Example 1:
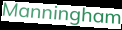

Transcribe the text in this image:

Manningham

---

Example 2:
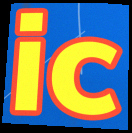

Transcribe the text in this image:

ic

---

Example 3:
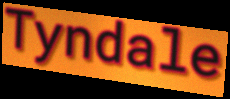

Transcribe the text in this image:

Tyndale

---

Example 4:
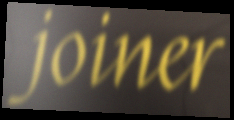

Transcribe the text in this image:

joiner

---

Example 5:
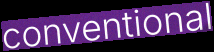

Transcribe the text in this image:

conventional